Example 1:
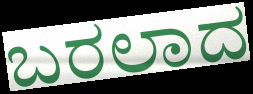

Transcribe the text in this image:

ಬರಲಾದ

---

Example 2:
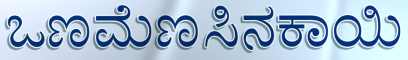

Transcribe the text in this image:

ಒಣಮೆಣಸಿನಕಾಯಿ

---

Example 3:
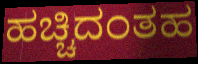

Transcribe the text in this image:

ಹಚ್ಚಿದಂತಹ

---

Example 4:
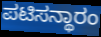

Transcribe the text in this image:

ಪಟಿಸನ್ಥಾರಂ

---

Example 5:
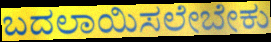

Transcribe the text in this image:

ಬದಲಾಯಿಸಲೇಬೇಕು